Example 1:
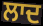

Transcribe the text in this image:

ਲਾਦ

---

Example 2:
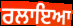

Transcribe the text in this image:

ਰਲਾਇਆ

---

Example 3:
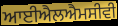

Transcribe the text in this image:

ਆਈਐਲਐਮਸੀਵੀ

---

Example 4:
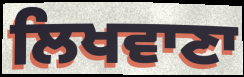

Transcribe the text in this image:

ਲਿਖਵਾਣਾ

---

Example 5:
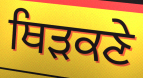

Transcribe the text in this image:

ਥਿੜਕਣੇ